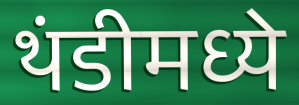
थंडीमध्ये